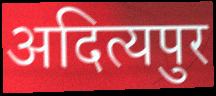
अदित्यपुर